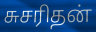
சுசரிதன்